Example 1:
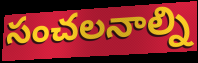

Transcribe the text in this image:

సంచలనాల్ని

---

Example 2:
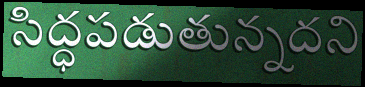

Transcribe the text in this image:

సిద్ధపడుతున్నదని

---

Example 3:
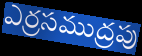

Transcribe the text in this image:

ఎర్రసముద్రపు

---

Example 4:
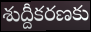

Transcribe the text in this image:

శుద్దీకరణకు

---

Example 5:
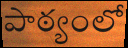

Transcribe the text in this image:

పాఠ్యంలో